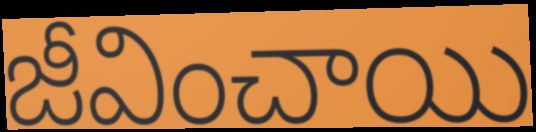
జీవించాయి